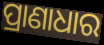
ପ୍ରାଣାଧାର